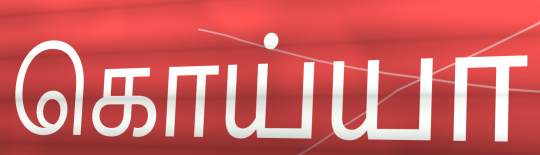
கொய்யா